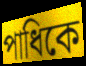
পাধিকে